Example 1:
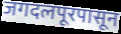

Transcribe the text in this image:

जगदलपूरपासून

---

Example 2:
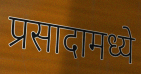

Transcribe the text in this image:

प्रसादामध्ये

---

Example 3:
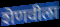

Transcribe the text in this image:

शेणवीला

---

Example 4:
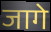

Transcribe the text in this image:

जागे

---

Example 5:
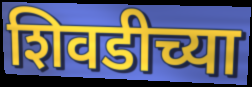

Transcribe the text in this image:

शिवडीच्या